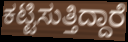
ಕಟ್ಟಿಸುತ್ತಿದ್ದಾರೆ